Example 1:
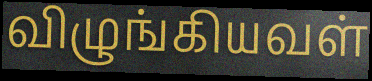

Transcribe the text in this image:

விழுங்கியவள்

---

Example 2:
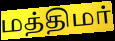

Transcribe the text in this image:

மத்திமர்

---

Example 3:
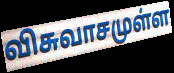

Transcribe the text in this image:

விசுவாசமுள்ள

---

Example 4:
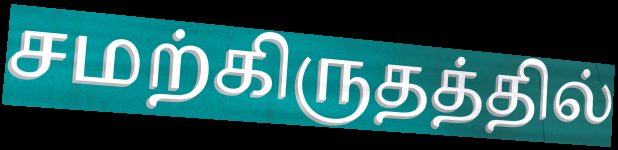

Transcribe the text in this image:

சமற்கிருதத்தில்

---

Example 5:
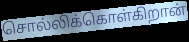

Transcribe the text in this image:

சொல்லிக்கொள்கிறான்